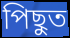
পিছুত